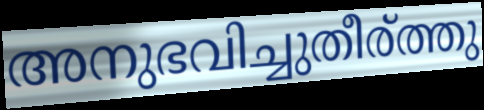
അനുഭവിച്ചുതീര്ത്തു